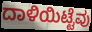
ದಾಳಿಯಿಟ್ಟೆವು